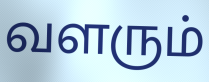
வளரும்